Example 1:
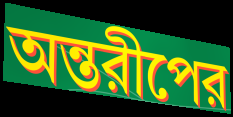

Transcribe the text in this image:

অন্তরীপের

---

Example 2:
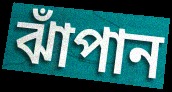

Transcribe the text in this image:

ঝাঁপান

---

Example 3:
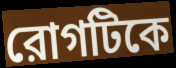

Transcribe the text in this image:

রোগটিকে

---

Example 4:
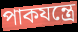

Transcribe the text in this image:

পাকযন্ত্রে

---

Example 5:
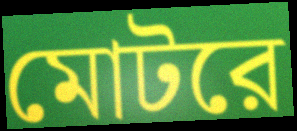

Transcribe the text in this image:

মোটরে